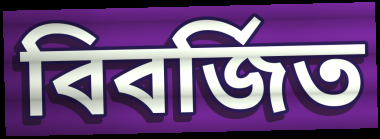
বিবর্জিত